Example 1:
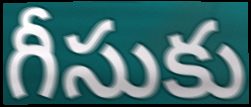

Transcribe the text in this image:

గీసుకు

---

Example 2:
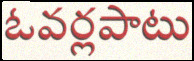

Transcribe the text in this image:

ఓవర్లపాటు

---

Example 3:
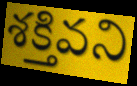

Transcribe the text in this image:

శక్తివని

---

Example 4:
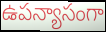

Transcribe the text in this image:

ఉపన్యాసంగా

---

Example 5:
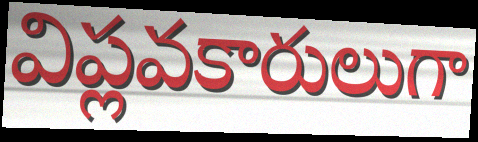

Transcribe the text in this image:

విప్లవకారులుగా